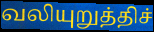
வலியுறுத்திச்